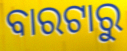
ବାରଟାରୁ